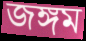
জঙ্গম